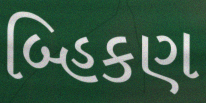
બ્હિકણ